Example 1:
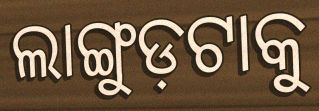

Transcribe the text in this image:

ଲାଙ୍ଗୁଡ଼ଟାକୁ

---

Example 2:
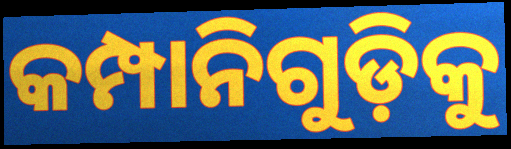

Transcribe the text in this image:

କମ୍ପାନିଗୁଡ଼ିକୁ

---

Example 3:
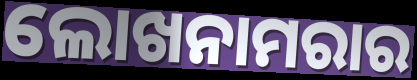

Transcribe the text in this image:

ଲୋଖନାମରାର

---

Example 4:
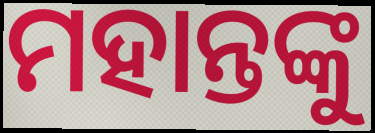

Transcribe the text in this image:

ମହାନ୍ତଙ୍କୁ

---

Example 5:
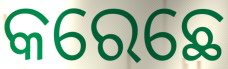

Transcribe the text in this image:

କରେଛେ